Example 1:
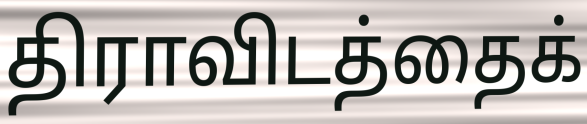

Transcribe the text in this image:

திராவிடத்தைக்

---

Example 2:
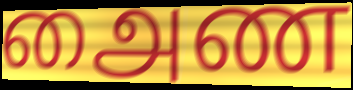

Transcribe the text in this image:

அைண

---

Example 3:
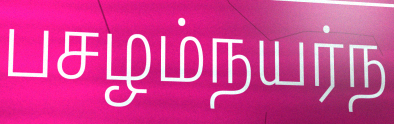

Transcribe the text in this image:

பசழம்நயர்ந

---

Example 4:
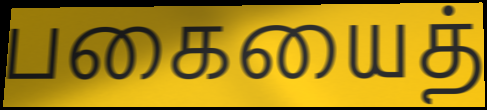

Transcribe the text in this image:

பகையைத்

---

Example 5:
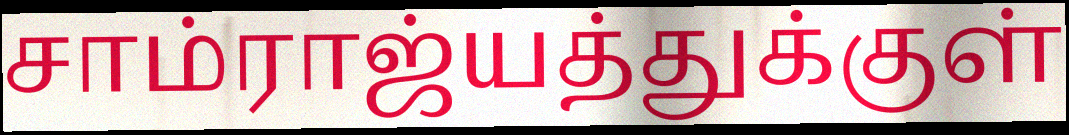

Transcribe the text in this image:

சாம்ராஜ்யத்துக்குள்